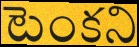
టెంకని